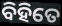
ବିହିତେ